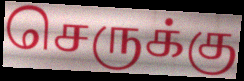
செருக்கு